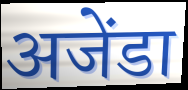
अजेंडा